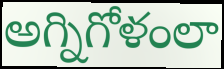
అగ్నిగోళంలా